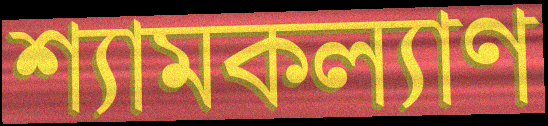
শ্যামকল্যাণ